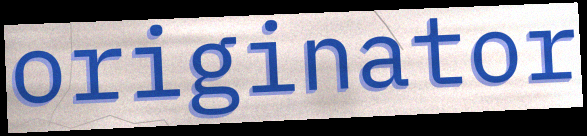
originator